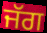
ਜੱਗ